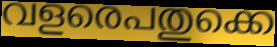
വളരെപതുക്കെ